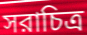
সরাচিত্র